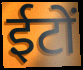
ईटों